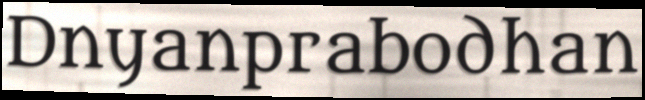
Dnyanprabodhan